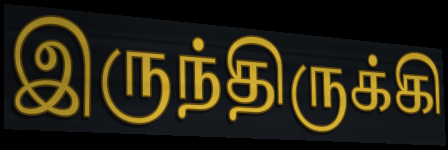
இருந்திருக்கி